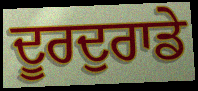
ਦੂਰਦੁਰਾਡੇ